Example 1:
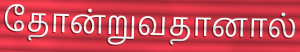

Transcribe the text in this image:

தோன்றுவதானால்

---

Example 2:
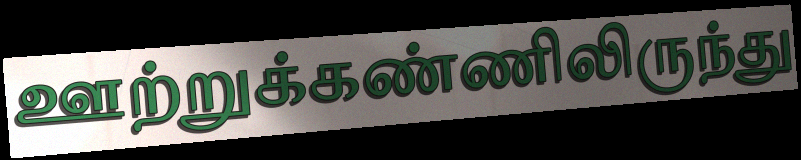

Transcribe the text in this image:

ஊற்றுக்கண்ணிலிருந்து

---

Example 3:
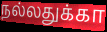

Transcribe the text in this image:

நல்லதுக்கா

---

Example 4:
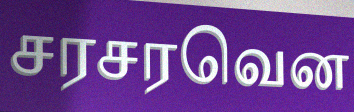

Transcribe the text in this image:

சரசரவென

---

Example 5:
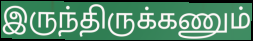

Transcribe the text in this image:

இருந்திருக்கணும்